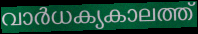
വാർധക്യകാലത്ത്